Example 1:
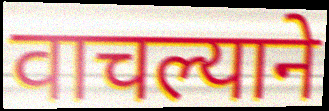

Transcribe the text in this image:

वाचल्याने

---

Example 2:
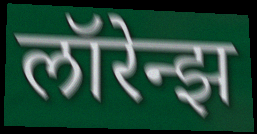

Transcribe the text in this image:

लॉरेन्झ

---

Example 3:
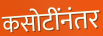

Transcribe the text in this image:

कसोटींनंतर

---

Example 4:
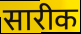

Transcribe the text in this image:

सारीक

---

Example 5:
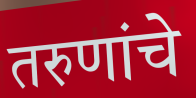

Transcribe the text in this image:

तरुणांचे